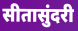
सीतासुंदरी